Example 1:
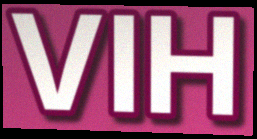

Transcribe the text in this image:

VIH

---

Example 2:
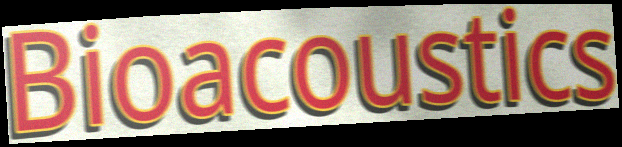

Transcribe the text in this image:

Bioacoustics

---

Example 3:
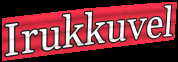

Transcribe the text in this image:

Irukkuvel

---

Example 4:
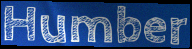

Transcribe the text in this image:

Humber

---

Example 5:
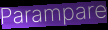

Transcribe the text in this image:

Parampare